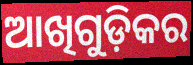
ଆଖିଗୁଡ଼ିକର